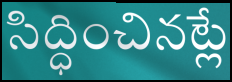
సిద్ధించినట్లే